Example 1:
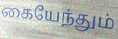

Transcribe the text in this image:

கையேந்தும்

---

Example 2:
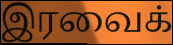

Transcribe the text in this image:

இரவைக்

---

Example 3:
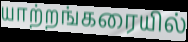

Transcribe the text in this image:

யாற்றங்கரையில்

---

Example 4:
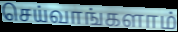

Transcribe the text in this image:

செய்வாங்களாம்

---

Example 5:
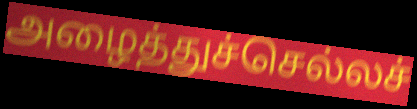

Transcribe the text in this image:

அழைத்துச்செல்லச்